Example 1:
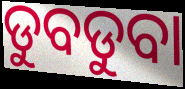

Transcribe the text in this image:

ଡୁବଡୁବା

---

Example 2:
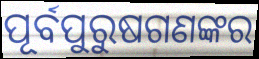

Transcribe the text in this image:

ପୂର୍ବପୁରୁଷଗଣଙ୍କର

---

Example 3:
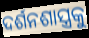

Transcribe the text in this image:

ଦର୍ଶନଶାସ୍ତ୍ରକୁ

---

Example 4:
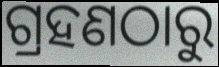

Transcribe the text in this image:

ଗ୍ରହଣଠାରୁ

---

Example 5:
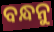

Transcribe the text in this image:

ବନ୍ଧନୁ